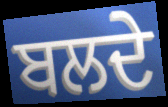
ਬਲਦੇ